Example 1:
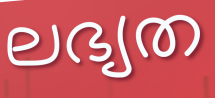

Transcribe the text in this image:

ലഭ്യത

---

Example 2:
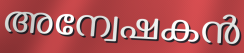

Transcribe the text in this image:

അന്വേഷകൻ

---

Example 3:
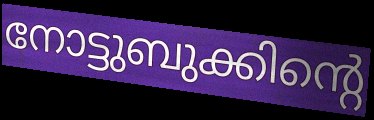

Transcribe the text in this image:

നോട്ടുബുക്കിന്റെ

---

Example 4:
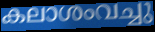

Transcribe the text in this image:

കലാശംവച്ചു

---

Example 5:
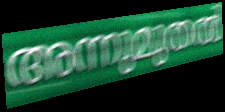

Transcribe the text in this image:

അന്നുമുതൽ